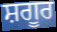
ਸ਼ਗੂਰ